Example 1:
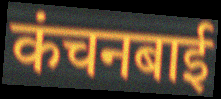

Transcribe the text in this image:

कंचनबाई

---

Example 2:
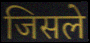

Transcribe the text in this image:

जिसले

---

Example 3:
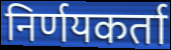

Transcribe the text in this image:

निर्णयकर्ता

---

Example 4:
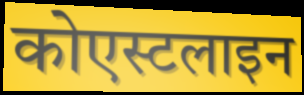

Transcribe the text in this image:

कोएस्टलाइन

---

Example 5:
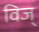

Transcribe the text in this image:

विज्